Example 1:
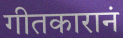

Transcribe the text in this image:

गीतकारानं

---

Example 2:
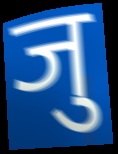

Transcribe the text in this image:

जु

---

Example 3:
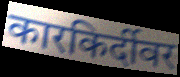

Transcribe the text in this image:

कारकिर्दीवर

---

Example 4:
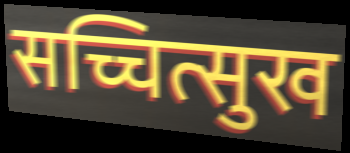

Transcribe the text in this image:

सच्चित्सुख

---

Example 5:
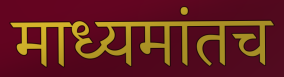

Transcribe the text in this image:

माध्यमांतच